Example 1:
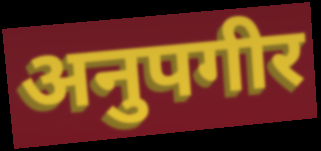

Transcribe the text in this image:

अनुपगीर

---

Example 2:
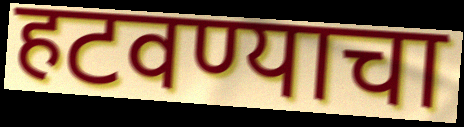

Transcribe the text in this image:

हटवण्याचा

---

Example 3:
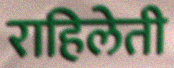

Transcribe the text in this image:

राहिलेती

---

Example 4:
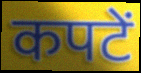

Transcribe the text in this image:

कपटें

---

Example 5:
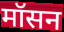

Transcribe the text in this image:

मॉसन